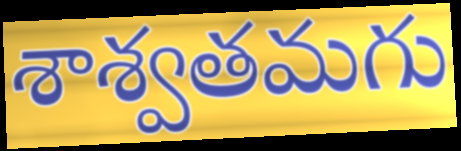
శాశ్వతమగు